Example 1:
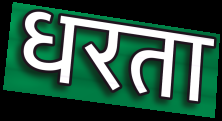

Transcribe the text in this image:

धरता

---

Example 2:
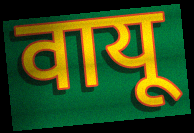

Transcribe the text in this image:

वायू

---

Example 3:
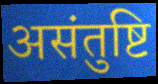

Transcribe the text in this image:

असंतुष्टि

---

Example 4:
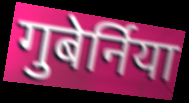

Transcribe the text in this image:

गुबेर्निया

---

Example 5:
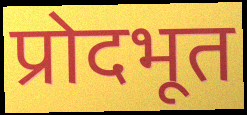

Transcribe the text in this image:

प्रोदभूत